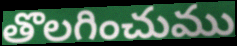
తొలగించుము